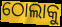
ଠୋଲାକୁ